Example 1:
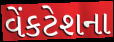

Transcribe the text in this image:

વેંકટેશના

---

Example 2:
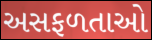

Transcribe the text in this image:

અસફળતાઓ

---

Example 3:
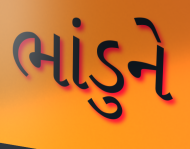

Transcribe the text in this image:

ભાંડુને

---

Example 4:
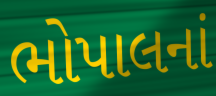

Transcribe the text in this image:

ભોપાલનાં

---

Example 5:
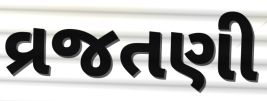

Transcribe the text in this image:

વ્રજતણી